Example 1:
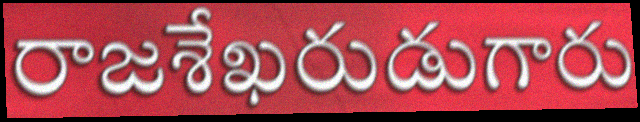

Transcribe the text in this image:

రాజశేఖరుడుగారు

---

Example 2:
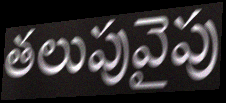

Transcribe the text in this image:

తలుపువైపు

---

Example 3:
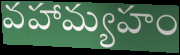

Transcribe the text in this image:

వహామ్యహం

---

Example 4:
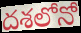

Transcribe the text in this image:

దశలోనో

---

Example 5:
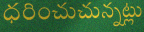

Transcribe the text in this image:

ధరించుచున్నట్లు